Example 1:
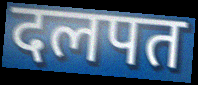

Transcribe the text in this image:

दलपत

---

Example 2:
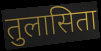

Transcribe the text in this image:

तुलासिता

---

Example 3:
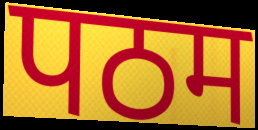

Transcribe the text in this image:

पठम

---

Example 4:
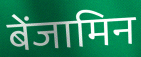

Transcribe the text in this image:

बेंजामिन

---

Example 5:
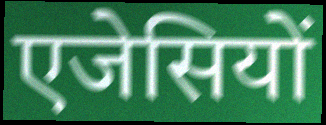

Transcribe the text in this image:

एजेसियों